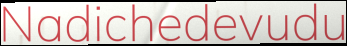
Nadichedevudu